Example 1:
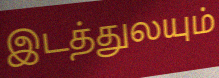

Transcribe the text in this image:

இடத்துலயும்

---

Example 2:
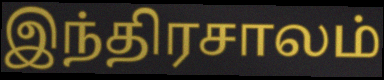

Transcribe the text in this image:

இந்திரசாலம்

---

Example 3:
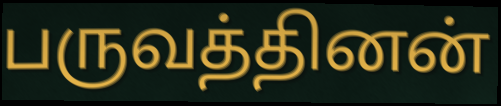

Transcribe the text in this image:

பருவத்தினன்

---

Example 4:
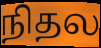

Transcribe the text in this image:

நிதல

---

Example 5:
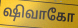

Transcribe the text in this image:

ஷிவாகோ